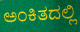
ಅಂಕಿತದಲ್ಲಿ